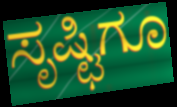
ಸೃಷ್ಟಿಗೂ